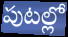
పుటల్లో